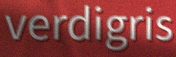
verdigris